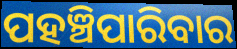
ପହଞ୍ଚିପାରିବାର